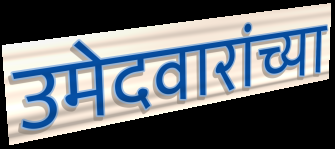
उमेदवारांच्या